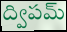
ద్విపమ్